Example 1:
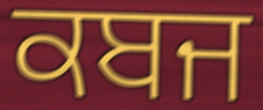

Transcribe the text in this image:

ਕਬਜ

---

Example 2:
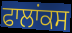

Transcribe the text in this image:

ਫਾਲਾਂਕਸ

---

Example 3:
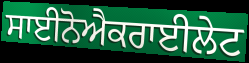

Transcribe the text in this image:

ਸਾਈਨੋਐਕਰਾਈਲੇਟ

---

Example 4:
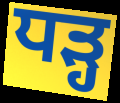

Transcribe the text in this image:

ਧੜ੍ਹ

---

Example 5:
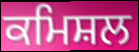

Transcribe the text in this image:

ਕਮਿਸ਼ਲ